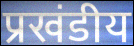
प्रखंडीय